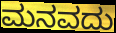
ಮನವದು